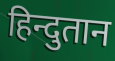
हिन्दुतान